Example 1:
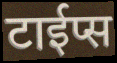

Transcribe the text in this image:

टाईप्स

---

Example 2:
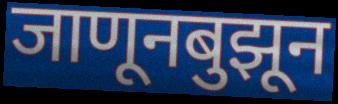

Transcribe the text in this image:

जाणूनबुझून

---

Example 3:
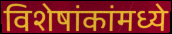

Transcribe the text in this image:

विशेषांकांमध्ये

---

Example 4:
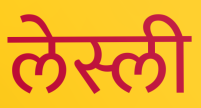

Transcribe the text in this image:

लेस्ली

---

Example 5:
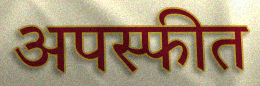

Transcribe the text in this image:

अपस्फीत